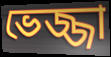
ভেজ্জা